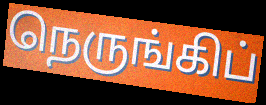
நெருங்கிப்